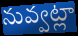
నువ్వట్లా